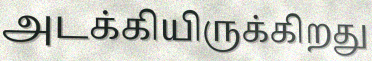
அடக்கியிருக்கிறது